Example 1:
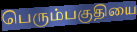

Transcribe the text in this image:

பெரும்பகுதியை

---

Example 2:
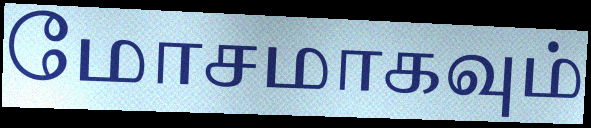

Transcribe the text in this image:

மோசமாகவும்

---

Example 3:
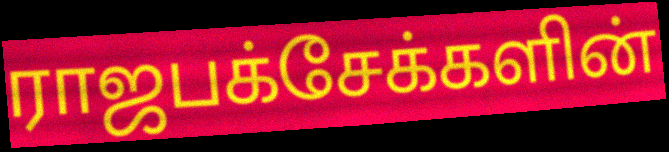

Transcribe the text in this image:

ராஜபக்சேக்களின்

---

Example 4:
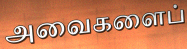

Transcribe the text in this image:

அவைகளைப்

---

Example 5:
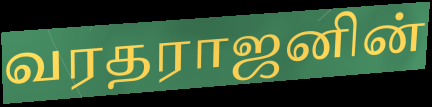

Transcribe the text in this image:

வரதராஜனின்